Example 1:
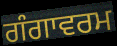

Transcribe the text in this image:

ਗੰਗਾਵਰਮ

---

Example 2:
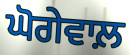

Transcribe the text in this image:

ਘੋਗੇਵਾਲ਼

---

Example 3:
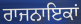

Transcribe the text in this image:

ਰਾਜਨਾਇਕਾਂ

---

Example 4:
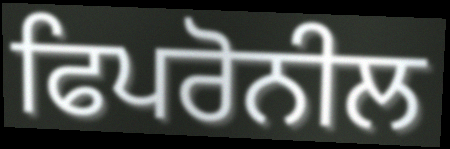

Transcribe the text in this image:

ਫਿਪਰੋਨੀਲ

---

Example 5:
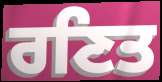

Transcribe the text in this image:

ਰਣਿਤ